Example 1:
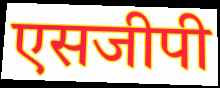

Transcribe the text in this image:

एसजीपी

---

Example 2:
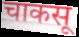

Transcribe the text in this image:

चाकसू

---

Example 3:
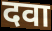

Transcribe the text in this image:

दवा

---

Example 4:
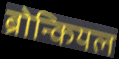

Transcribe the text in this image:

ब्रोन्कियल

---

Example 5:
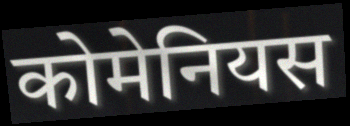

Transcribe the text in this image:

कोमेनियस